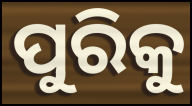
ପୁରିକୁ